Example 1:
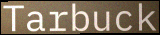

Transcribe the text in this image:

Tarbuck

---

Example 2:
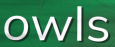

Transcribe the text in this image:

owls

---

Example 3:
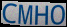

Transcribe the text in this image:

CMHO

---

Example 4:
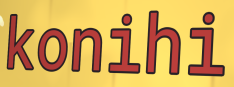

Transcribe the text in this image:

konihi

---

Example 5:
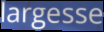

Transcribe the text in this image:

largesse